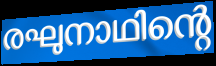
രഘുനാഥിന്റെ